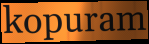
kopuram